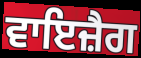
ਵਾਇਜ਼ੈਗ